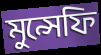
মুন্সেফি